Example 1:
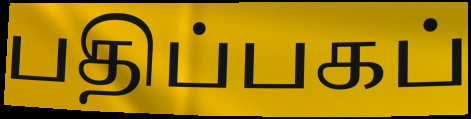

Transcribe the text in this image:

பதிப்பகப்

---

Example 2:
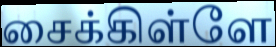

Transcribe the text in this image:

சைக்கிள்ளே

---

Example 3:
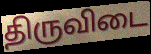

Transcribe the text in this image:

திருவிடை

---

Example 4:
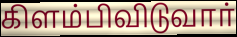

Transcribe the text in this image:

கிளம்பிவிடுவார்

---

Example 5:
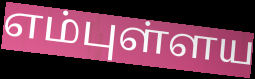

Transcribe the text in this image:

எம்புள்ளய